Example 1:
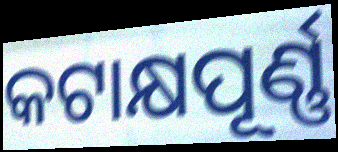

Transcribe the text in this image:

କଟାକ୍ଷପୂର୍ଣ୍ଣ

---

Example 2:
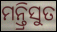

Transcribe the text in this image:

ମନ୍ତ୍ରିସୁତ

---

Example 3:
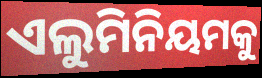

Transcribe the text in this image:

ଏଲୁମିନିୟମକୁ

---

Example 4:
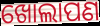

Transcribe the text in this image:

ଖୋଲାପଣ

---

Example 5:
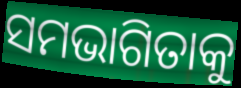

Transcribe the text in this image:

ସମଭାଗିତାକୁ